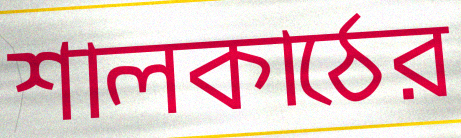
শালকাঠের